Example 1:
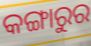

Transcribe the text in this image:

କଙ୍ଗାରୁର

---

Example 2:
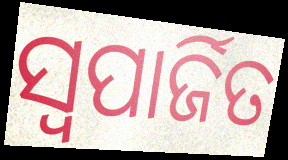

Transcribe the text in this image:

ସ୍ଵପାର୍ଜିତ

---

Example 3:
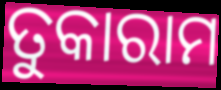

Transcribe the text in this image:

ତୁକାରାମ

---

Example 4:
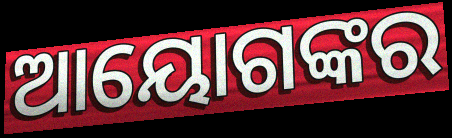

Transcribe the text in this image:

ଆୟୋଗଙ୍କର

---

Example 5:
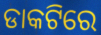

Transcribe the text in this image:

ଡାକଟିରେ